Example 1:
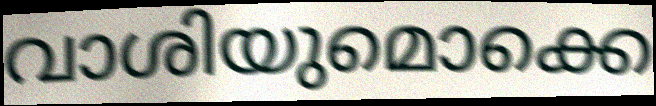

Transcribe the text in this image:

വാശിയുമൊക്കെ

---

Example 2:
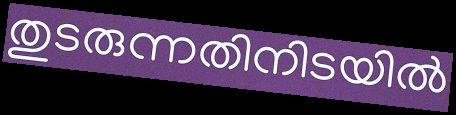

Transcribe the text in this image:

തുടരുന്നതിനിടയിൽ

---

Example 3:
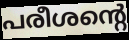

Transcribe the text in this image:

പരീശന്റെ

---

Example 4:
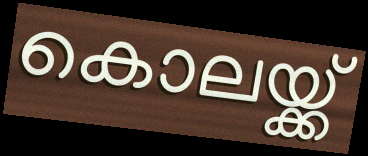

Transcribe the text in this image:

കൊലയ്ക്ക്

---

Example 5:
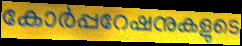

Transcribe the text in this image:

കോർപ്പറേഷനുകളുടെ